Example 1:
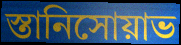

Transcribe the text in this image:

স্তানিসোয়াভ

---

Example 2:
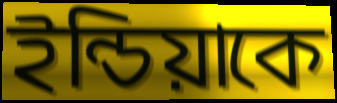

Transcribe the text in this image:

ইন্ডিয়াকে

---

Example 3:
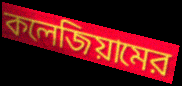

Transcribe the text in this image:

কলেজিয়ামের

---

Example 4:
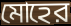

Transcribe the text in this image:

মোহের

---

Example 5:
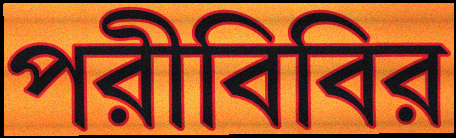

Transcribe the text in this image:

পরীবিবির